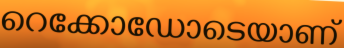
റെക്കോഡോടെയാണ്